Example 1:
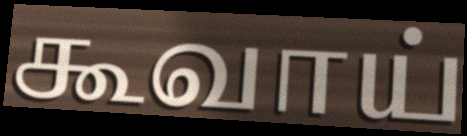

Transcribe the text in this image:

கூவாய்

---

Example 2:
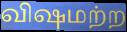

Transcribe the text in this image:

விஷமற்ற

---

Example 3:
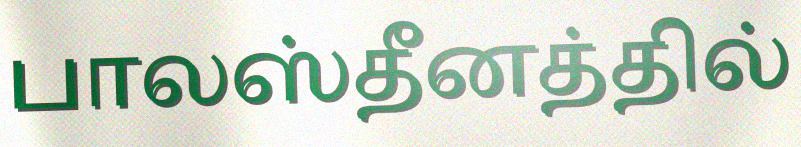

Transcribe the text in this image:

பாலஸ்தீனத்தில்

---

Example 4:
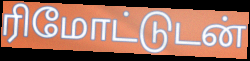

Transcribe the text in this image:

ரிமோட்டுடன்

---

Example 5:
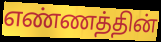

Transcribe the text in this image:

எண்ணத்தின்